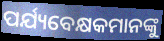
ପର୍ଯ୍ୟବେକ୍ଷକମାନଙ୍କୁ